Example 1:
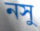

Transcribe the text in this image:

নসু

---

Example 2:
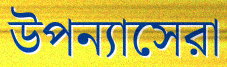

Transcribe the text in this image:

উপন্যাসেরা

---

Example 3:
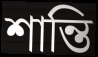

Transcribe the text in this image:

শান্তি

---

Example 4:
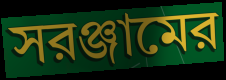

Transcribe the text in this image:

সরঞ্জামের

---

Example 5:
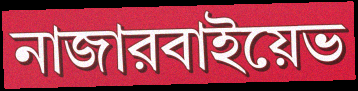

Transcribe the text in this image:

নাজারবাইয়েভ